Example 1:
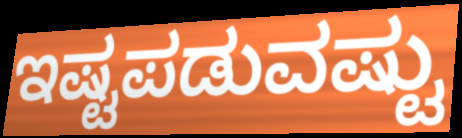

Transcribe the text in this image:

ಇಷ್ಟಪಡುವಷ್ಟು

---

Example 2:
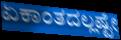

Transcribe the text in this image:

ಏಕಾಂತದಲ್ಲಷ್ಟೇ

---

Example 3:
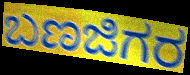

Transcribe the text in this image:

ಬಣಜಿಗರ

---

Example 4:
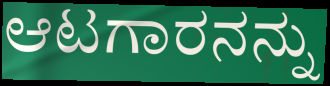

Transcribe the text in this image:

ಆಟಗಾರನನ್ನು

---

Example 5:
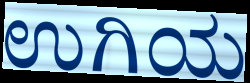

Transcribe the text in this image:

ಉಗಿಯ